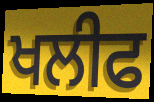
ਖਲੀਫ